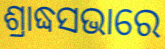
ଶ୍ରାଦ୍ଧସଭାରେ